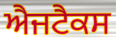
ਐਜਟੈਕਸ